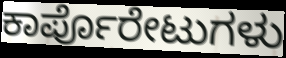
ಕಾರ್ಪೊರೇಟುಗಳು